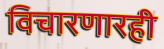
विचारणारही